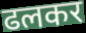
ढलकर